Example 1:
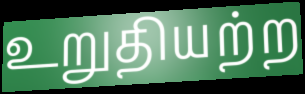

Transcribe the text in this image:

உறுதியற்ற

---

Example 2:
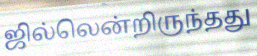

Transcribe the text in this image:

ஜில்லென்றிருந்தது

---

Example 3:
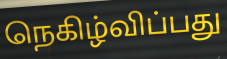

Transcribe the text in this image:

நெகிழ்விப்பது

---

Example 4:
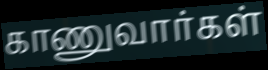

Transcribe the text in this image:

காணுவார்கள்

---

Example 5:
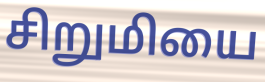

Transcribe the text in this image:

சிறுமியை